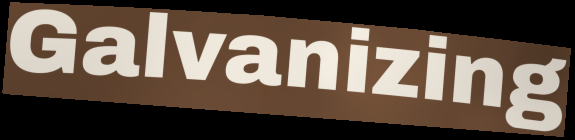
Galvanizing